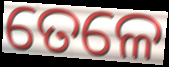
ତେଳେ